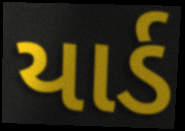
યાર્ડ